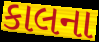
કાલના